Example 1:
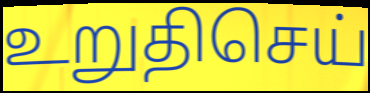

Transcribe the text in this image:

உறுதிசெய்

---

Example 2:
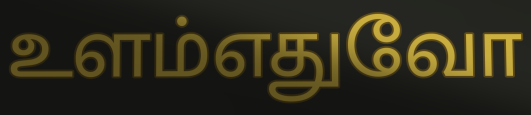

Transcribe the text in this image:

உளம்எதுவோ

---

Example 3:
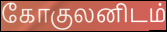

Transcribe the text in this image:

கோகுலனிடம்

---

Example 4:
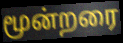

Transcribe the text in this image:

மூன்றரை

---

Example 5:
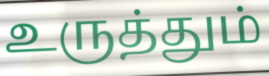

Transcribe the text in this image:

உருத்தும்